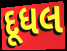
દૂધલ